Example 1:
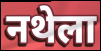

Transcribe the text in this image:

नथेला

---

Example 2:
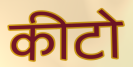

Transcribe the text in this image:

कीटो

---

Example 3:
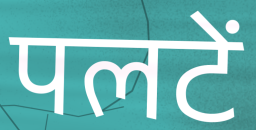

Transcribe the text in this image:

पलटें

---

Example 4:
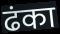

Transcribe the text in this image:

ढंका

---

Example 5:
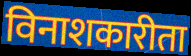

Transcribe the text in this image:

विनाशकारीता